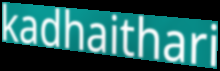
kadhaithari